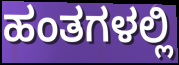
ಹಂತಗಳಲ್ಲಿ